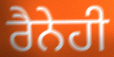
ਰੈਨੇਹੀ